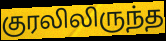
குரலிலிருந்த